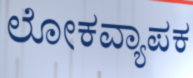
ಲೋಕವ್ಯಾಪಕ